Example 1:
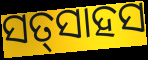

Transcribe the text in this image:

ସତ୍‍ସାହସ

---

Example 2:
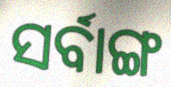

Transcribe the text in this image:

ସର୍ବାଙ୍ଗ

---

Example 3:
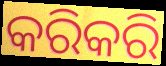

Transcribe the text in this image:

କରିକରି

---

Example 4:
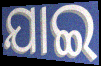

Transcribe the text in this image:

ଯାଇ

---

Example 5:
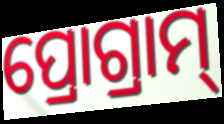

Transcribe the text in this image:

ପ୍ରୋଗ୍ରାମ୍